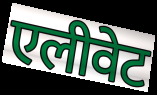
एलीवेट